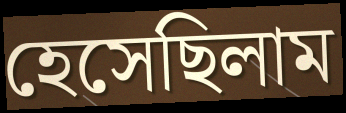
হেসেছিলাম